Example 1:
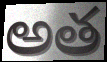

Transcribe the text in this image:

అత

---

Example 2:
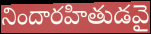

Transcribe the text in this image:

నిందారహితుడవై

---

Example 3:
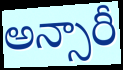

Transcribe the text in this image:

అన్సారీ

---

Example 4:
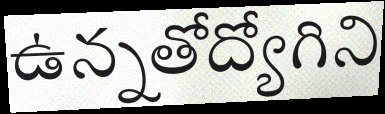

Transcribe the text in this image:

ఉన్నతోద్యోగిని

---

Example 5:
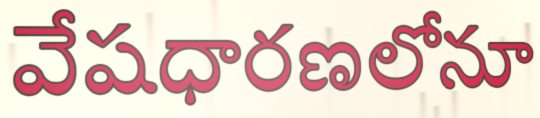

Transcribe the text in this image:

వేషధారణలోనూ